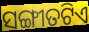
ସଙ୍ଗୀତଟିଏ